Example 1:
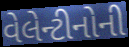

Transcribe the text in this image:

વેલેન્ટીનોની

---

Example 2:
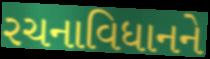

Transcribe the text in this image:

રચનાવિધાનને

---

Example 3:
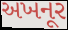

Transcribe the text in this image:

અખનૂર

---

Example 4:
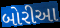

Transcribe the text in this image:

બોરીઆ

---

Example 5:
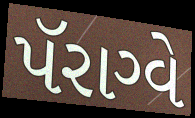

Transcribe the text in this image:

પૅરાગ્વે